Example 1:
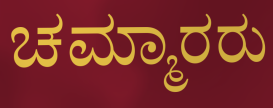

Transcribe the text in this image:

ಚಮ್ಮಾರರು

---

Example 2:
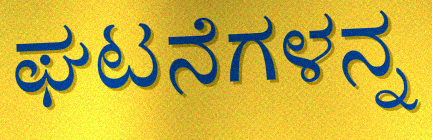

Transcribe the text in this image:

ಘಟನೆಗಳನ್ನ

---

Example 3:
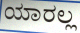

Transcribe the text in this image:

ಯಾರಲ್ಲ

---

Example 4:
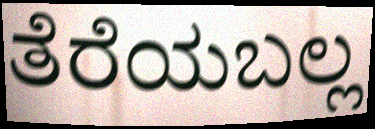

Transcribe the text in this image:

ತೆರೆಯಬಲ್ಲ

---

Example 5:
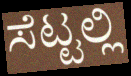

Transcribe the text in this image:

ಸೆಟ್ಟಲ್ಲಿ